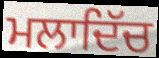
ਮਲਾਦਿੱਚ